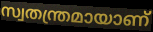
സ്വതന്ത്രമായാണ്